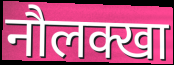
नौलक्खा